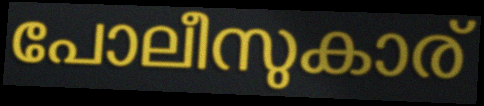
പോലീസുകാര്